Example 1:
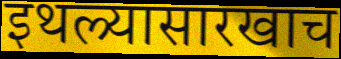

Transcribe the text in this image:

इथल्यासारखाच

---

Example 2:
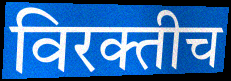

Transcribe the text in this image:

विरक्तीच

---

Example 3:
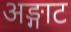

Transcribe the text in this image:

अङ्गाट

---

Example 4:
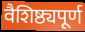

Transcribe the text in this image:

वैशिष्ठ्यपूर्ण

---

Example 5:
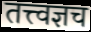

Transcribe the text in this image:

तत्त्वज्ञच